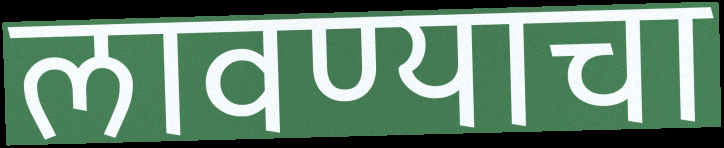
लावण्याचा